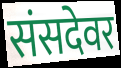
संसदेवर